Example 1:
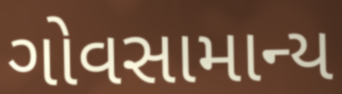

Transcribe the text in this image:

ગોવસામાન્ય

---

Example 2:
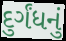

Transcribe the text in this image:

દુર્ગંધનું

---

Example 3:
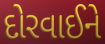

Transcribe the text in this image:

દોરવાઈને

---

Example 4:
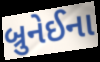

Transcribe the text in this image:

બ્રુનેઈના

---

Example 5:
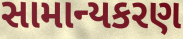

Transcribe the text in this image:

સામાન્યકરણ